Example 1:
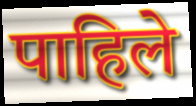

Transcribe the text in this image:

पाहिले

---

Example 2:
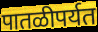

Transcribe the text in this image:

पातळीपर्यत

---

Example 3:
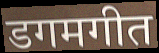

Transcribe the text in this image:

डगमगीत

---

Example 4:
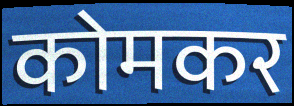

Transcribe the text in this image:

कोमकर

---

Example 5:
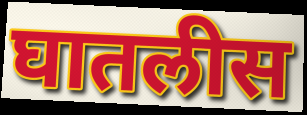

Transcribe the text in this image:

घातलीस